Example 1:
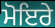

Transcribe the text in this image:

ਮੋਇਰੇ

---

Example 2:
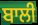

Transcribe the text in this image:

ਬਾਲੀ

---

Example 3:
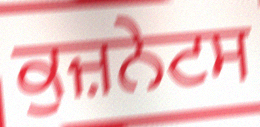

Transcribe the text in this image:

ਕੁਜ਼ਨੇਟਸ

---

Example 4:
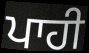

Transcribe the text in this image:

ਪਾਹੀ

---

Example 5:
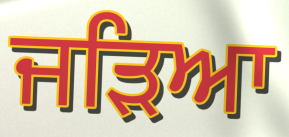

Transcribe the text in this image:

ਜੜਿਆ